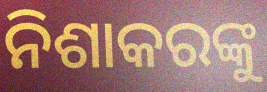
ନିଶାକରଙ୍କୁ